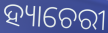
ହ୍ୟାଚେରୀ